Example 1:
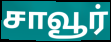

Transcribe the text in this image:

சாவூர்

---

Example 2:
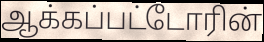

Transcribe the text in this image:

ஆக்கப்பட்டோரின்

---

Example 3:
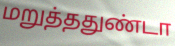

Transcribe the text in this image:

மறுத்ததுண்டா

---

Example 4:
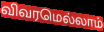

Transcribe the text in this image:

விவரமெல்லாம்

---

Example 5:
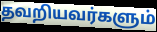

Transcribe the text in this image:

தவறியவர்களும்